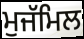
ਮੁਜੱਮਿਲ